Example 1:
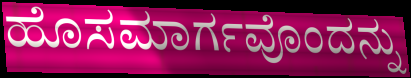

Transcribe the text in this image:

ಹೊಸಮಾರ್ಗವೊಂದನ್ನು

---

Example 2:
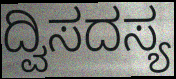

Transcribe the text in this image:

ದ್ವಿಸದಸ್ಯ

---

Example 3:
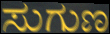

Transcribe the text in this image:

ಸುಗುಣ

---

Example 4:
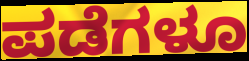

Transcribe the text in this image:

ಪಡೆಗಳೂ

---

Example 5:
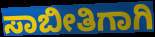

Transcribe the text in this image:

ಸಾಬೀತಿಗಾಗಿ